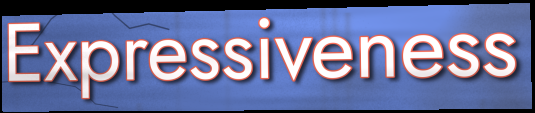
Expressiveness